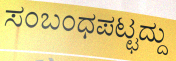
ಸಂಬಂಧಪಟ್ಟದ್ದು